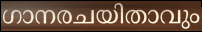
ഗാനരചയിതാവും